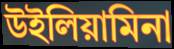
উইলিয়ামিনা